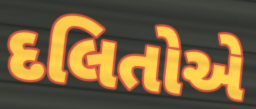
દલિતોએ